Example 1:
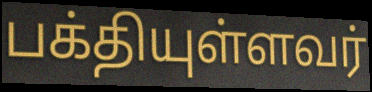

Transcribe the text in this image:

பக்தியுள்ளவர்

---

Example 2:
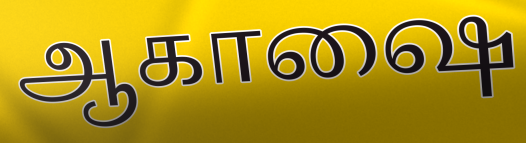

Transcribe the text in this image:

ஆகாஷை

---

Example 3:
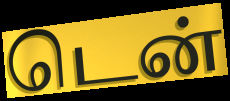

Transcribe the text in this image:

டென்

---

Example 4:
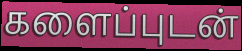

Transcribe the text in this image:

களைப்புடன்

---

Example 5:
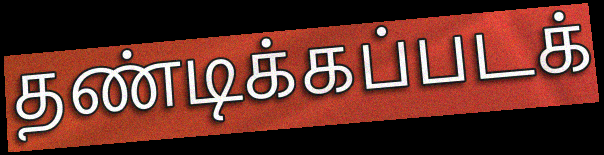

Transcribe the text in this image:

தண்டிக்கப்படக்